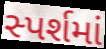
સ્પર્શમાં